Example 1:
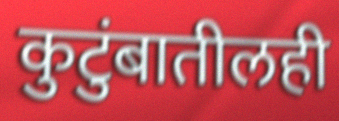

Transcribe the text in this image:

कुटुंबातीलही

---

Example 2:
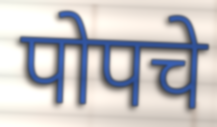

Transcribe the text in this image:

पोपचे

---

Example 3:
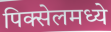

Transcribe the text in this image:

पिक्सेलमध्ये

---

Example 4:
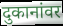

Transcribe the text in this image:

दुकानांवर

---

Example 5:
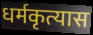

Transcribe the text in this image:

धर्मकृत्यास